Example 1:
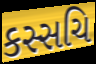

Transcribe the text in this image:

કસ્સચિ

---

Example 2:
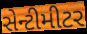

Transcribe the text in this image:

સેન્ટીમીટર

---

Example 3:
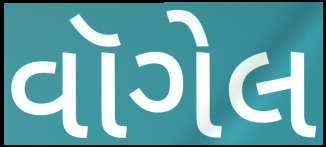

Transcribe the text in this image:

વૉગેલ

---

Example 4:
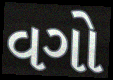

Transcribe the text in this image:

વગો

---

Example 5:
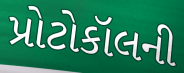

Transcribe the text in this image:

પ્રોટોકૉલની